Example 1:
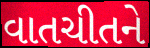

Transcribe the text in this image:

વાતચીતને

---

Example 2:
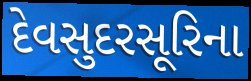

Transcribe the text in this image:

દેવસુદરસૂરિના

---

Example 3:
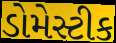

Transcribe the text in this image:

ડોમેસ્ટીક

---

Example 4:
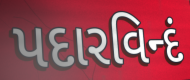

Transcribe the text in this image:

પદારવિન્દં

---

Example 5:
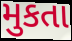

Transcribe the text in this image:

મુકતા